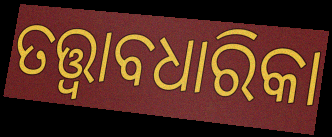
ତତ୍ତ୍ୱାବଧାରିକା